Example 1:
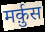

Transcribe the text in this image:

मर्क़ुस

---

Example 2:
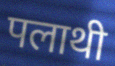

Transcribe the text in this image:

पलाथी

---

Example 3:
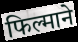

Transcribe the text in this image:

फिल्‍माने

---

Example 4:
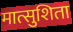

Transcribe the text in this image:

मात्सुशिता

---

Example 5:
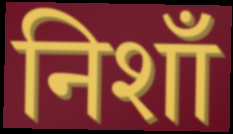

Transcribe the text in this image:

निशाँ